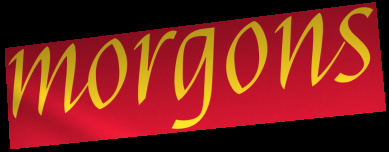
morgons